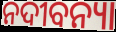
ନଦୀବନ୍ୟା